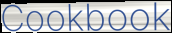
Cookbook